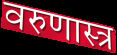
वरुणास्त्र